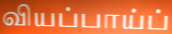
வியப்பாய்ப்